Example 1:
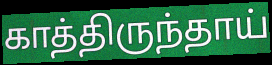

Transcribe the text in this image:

காத்திருந்தாய்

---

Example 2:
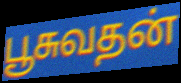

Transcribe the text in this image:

பூசுவதன்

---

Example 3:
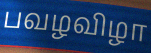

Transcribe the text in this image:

பவழவிழா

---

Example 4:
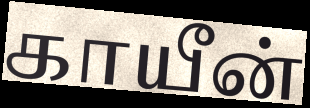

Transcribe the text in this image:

காயீன்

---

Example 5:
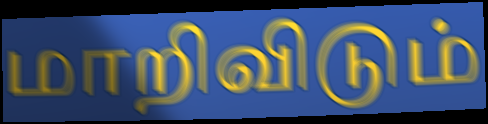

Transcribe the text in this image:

மாறிவிடும்